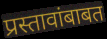
प्रस्तावांबाबत